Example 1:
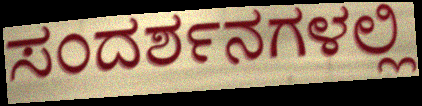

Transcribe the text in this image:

ಸಂದರ್ಶನಗಳಲ್ಲಿ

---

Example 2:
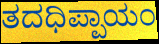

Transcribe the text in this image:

ತದಧಿಪ್ಪಾಯಂ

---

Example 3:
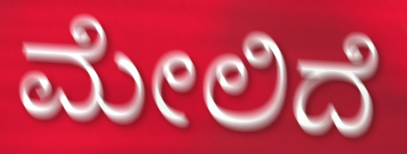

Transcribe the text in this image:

ಮೇಲಿದೆ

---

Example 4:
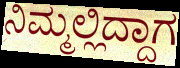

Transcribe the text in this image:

ನಿಮ್ಮಲ್ಲಿದ್ದಾಗ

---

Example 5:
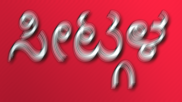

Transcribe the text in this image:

ಸೀಟ್ಗಳ